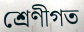
শ্ৰেণীগত